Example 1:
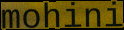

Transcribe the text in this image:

mohini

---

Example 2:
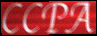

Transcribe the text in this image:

CCPA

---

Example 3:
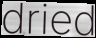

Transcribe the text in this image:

dried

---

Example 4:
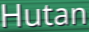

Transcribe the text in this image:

Hutan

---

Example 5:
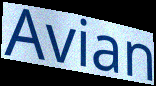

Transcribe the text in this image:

Avian